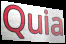
Quia